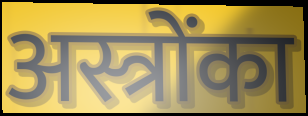
अस्त्रोंका